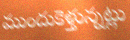
ముందుకెళ్తున్నట్లు